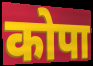
कोपा